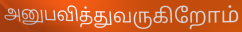
அனுபவித்துவருகிறோம்